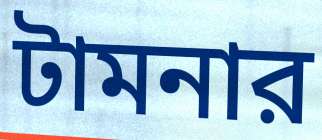
টামনার